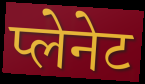
प्लेनेट